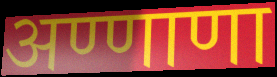
अण्णाणा